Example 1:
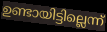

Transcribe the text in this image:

ഉണ്ടായിട്ടില്ലെന്ന്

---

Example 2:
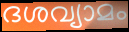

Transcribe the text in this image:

ദശവ്യാമം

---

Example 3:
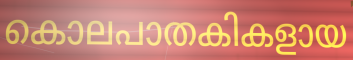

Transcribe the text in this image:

കൊലപാതകികളായ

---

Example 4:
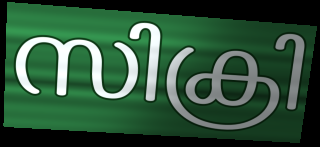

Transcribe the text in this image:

സിക്രി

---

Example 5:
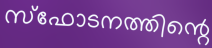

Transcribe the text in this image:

സ്ഫോടനത്തിന്റെ